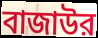
বাজাউর